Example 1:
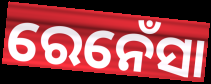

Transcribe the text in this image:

ରେନେଁସା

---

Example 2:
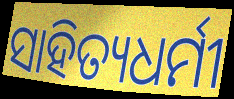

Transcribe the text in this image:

ସାହିତ୍ୟଧର୍ମୀ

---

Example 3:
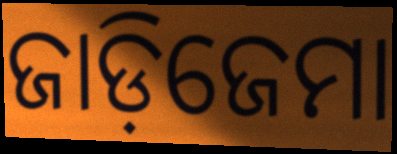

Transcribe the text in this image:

ଜାଡ଼ିଜେମା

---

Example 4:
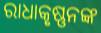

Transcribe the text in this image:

ରାଧାକୃଷ୍ଣନଙ୍କ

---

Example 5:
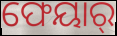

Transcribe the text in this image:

ଫେୟାର୍